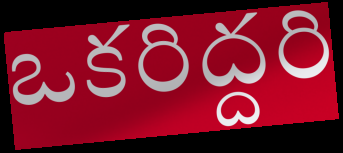
ఒకరిద్దరి